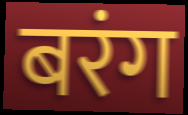
बरंग